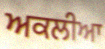
ਅਕਲੀਆ